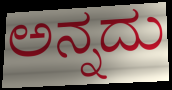
ಅನ್ನದು